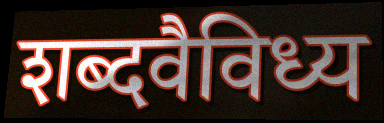
शब्दवैविध्य